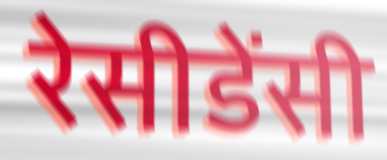
रेसीडेंसी